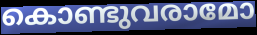
കൊണ്ടുവരാമോ